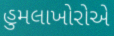
હુમલાખોરોએ